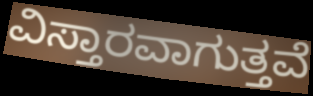
ವಿಸ್ತಾರವಾಗುತ್ತವೆ